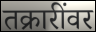
तक्रारींवर